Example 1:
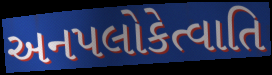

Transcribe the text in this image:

અનપલોકેત્વાતિ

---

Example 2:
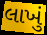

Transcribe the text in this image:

લાખું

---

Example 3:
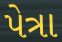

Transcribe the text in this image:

પેત્રા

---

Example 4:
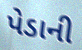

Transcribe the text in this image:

પેડાની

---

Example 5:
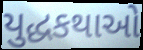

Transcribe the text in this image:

યુદ્ધકથાઓ